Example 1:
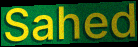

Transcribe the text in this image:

Sahed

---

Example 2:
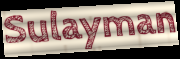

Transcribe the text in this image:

Sulayman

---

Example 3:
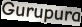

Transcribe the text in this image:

Gurupura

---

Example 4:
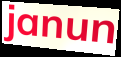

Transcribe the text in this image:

janun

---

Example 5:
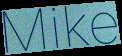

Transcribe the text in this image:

Mike